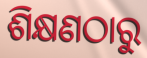
ଶିକ୍ଷଣଠାରୁ